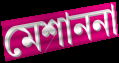
মেশাননা